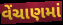
વેંચાણમાં